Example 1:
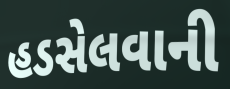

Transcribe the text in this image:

હડસેલવાની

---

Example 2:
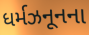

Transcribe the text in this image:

ધર્મઝનૂનના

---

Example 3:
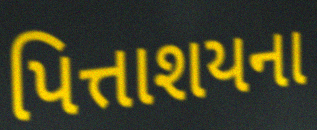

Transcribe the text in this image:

પિત્તાશયના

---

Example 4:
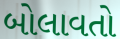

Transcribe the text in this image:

બોલાવતો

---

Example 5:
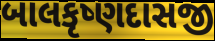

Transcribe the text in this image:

બાલકૃષ્ણદાસજી